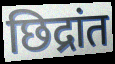
छिद्रांत